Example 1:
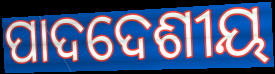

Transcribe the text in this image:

ପାଦଦେଶୀୟ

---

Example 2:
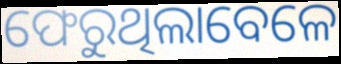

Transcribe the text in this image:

ଫେରୁଥିଲାବେଳେ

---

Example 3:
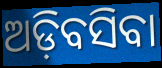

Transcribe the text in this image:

ଅଡ଼ିବସିବା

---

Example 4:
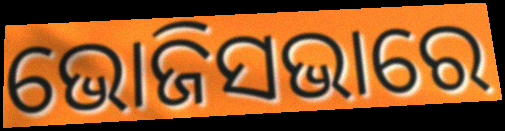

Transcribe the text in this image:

ଭୋଜିସଭାରେ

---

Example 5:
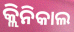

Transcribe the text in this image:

କ୍ଲିନିକାଲ